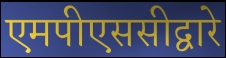
एमपीएससीद्वारे